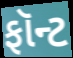
ફૉન્ટ